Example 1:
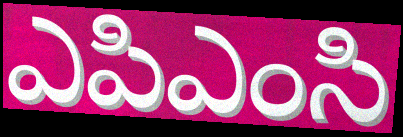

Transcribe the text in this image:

ఎపిఎంసి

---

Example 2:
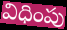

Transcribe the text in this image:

విధింపు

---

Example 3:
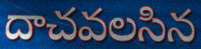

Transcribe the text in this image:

దాచవలసిన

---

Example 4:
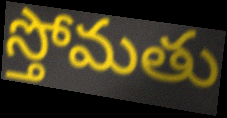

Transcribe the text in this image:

స్తోమతు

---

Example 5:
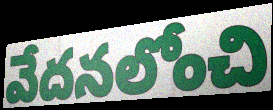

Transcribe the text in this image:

వేదనలోంచి